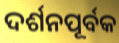
ଦର୍ଶନପୂର୍ବକ